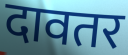
दावतर